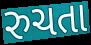
રુચતા